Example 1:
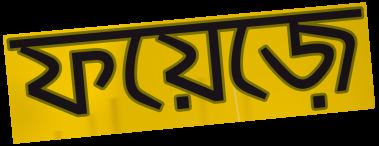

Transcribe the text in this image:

ফয়েজ়ে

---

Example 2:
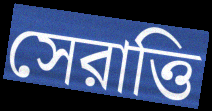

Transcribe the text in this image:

সেরাত্তি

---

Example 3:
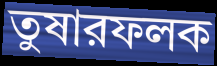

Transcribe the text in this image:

তুষারফলক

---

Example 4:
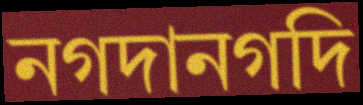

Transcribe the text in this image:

নগদানগদি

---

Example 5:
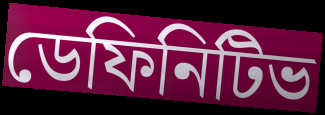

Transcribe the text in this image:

ডেফিনিটিভ